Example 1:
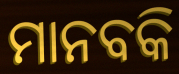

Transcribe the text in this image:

ମାନବକି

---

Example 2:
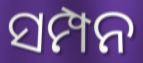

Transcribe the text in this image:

ସମ୍ପନ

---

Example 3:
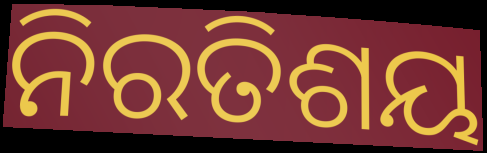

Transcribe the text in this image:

ନିରତିଶୟ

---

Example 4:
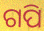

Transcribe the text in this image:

ଗପି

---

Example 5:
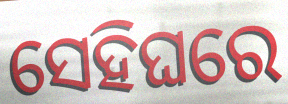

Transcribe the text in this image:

ସେହିଘରେ